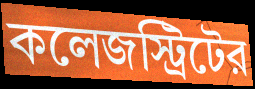
কলেজস্ট্রিটের